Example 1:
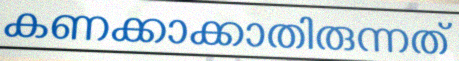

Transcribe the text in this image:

കണക്കാക്കാതിരുന്നത്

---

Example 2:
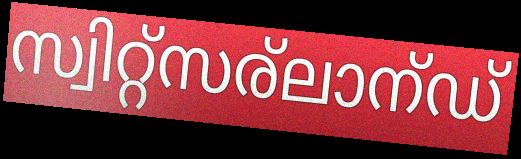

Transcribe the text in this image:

സ്വിറ്റ്സര്ലാന്ഡ്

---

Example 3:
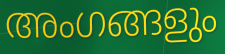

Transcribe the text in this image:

അംഗങ്ങളും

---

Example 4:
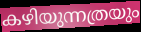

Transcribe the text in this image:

കഴിയുന്നത്രയും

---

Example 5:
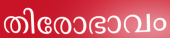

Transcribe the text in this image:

തിരോഭാവം